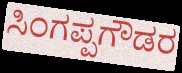
ಸಿಂಗಪ್ಪಗೌಡರ